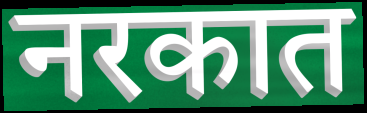
नरकात